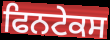
ਫਿਨਟੇਕਸ